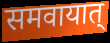
समवायात्